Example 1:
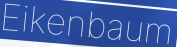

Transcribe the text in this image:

Eikenbaum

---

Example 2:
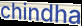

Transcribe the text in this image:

chindha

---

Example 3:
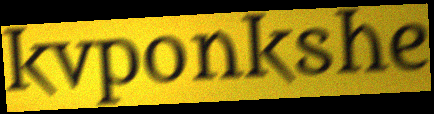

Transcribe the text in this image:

kvponkshe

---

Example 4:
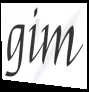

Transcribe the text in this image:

gim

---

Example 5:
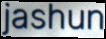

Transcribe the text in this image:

jashun